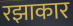
रझाकार